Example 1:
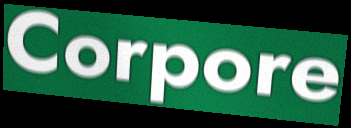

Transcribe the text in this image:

Corpore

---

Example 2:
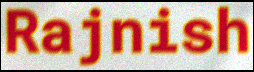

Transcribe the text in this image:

Rajnish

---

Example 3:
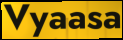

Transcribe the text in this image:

Vyaasa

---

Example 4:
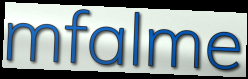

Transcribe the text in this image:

mfalme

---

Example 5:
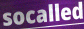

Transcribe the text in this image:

socalled